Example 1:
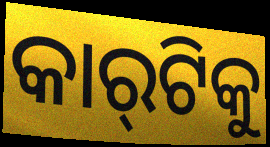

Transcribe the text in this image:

କାର୍‍ଟିକୁ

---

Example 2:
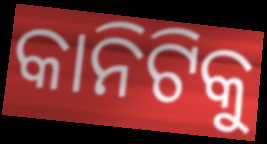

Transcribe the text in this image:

କାନିଟିକୁ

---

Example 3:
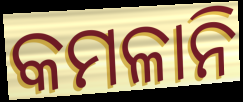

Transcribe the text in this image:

କମଳାନି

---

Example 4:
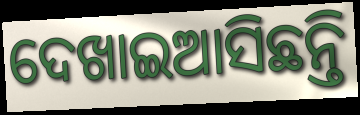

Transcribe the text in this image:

ଦେଖାଇଆସିଛନ୍ତି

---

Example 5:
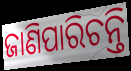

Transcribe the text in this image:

ଜାଣିପାରିଚନ୍ତି